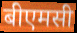
बीएमसी